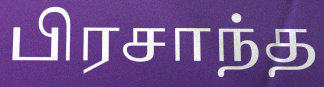
பிரசாந்த